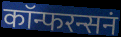
कॉन्फरन्सनं